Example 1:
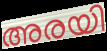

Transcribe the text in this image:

അരയി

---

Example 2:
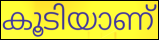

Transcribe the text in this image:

കൂടിയാണ്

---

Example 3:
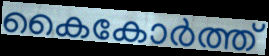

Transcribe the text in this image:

കൈകോർത്ത്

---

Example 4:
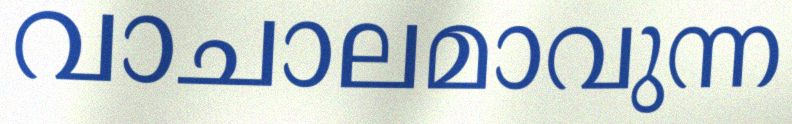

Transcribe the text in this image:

വാചാലമാവുന്ന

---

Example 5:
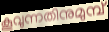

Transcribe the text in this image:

കൂവുന്നതിനുമുമ്പ്